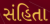
સંહિતા